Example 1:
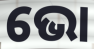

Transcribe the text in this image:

ଭୋ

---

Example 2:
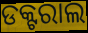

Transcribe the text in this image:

ଡକ୍ଟରାଲ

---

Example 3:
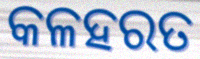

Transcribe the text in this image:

କଳହରତ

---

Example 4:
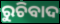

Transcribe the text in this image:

ରୁଚିବାଦ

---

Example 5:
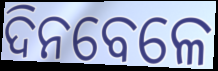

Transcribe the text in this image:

ଦିନବେଳେ